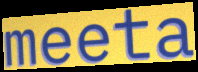
meeta